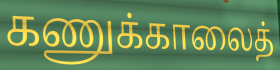
கணுக்காலைத்